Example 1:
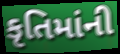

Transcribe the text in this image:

કૃતિમાંની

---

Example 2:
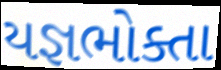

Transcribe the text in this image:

યજ્ઞભોક્તા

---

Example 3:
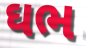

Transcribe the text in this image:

ઘભ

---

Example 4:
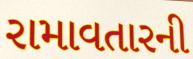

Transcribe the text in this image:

રામાવતારની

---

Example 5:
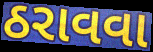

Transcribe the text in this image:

ઠરાવવા